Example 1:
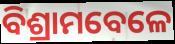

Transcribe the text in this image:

ବିଶ୍ରାମବେଳେ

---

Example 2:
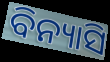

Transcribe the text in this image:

ବିନ୍ୟାସି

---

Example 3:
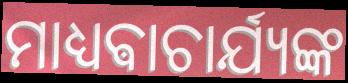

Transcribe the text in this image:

ମାଧ୍ୟଵାଚାର୍ଯ୍ୟଙ୍କ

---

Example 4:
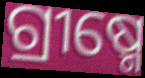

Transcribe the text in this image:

ଗ୍ରୀଷ୍ମେ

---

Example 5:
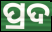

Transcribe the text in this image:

ପ୍ରଦ